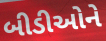
બીડીઓને